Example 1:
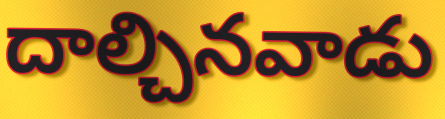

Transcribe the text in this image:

దాల్చినవాడు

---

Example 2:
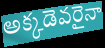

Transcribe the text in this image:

అక్కడెవరైనా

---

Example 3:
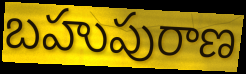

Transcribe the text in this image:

బహుపురాణ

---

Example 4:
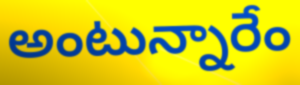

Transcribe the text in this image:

అంటున్నారేం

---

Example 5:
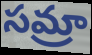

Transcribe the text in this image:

సమ్రా